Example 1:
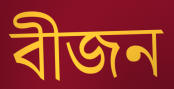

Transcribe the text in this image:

বীজন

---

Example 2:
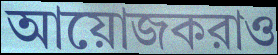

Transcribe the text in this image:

আয়োজকরাও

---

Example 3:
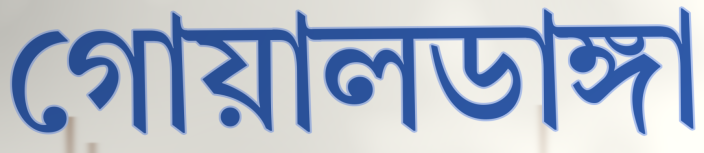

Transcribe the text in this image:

গোয়ালডাঙ্গা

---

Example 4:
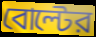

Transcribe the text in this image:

বোল্টের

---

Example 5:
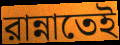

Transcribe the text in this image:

রান্নাতেই